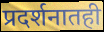
प्रदर्शनातही